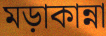
মড়াকান্না